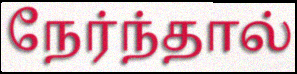
நேர்ந்தால்